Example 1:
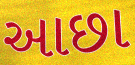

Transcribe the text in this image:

આછા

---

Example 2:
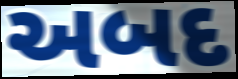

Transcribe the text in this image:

અબદ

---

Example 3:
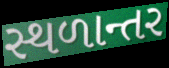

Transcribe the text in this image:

સ્થળાન્તર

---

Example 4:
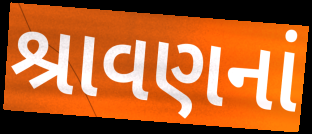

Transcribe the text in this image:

શ્રાવણનાં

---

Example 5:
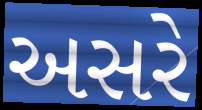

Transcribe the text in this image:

અસરે